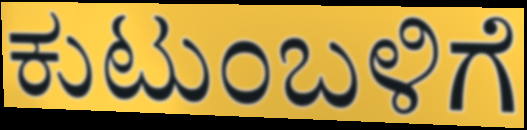
ಕುಟುಂಬಳಿಗೆ